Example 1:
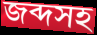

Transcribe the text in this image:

জব্দসহ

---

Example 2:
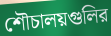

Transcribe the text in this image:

শৌচালয়গুলির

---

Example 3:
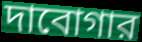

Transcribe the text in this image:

দাবোগার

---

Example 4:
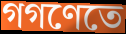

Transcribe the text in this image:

গগণেতে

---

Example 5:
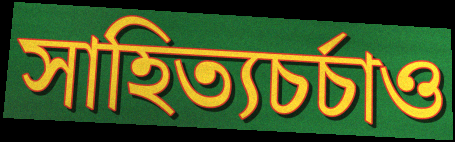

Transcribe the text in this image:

সাহিত্যচর্চাও